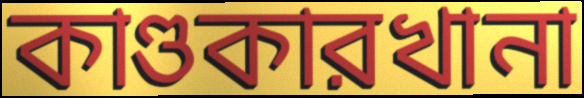
কাণ্ডকারখানা